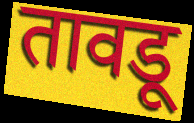
तावडू